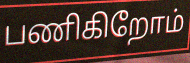
பணிகிறோம்